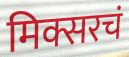
मिक्सरचं